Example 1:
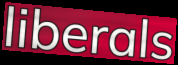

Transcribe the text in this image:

liberals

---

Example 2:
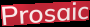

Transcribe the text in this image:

Prosaic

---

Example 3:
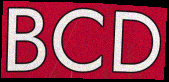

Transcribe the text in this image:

BCD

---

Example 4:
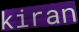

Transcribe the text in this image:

kiran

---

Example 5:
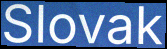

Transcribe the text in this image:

Slovak